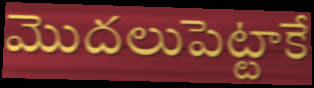
మొదలుపెట్టాకే